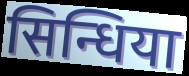
सिन्धिया